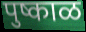
पुष्काळ